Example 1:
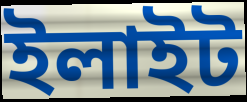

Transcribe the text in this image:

ইলাইট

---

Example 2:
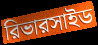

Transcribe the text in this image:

রিভারসাইড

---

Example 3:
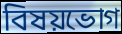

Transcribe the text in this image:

বিষয়ভোগ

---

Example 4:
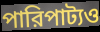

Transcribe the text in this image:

পারিপাট্যও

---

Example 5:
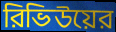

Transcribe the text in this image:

রিভিউয়ের